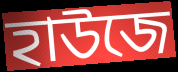
হাউজে